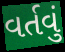
વર્તવું